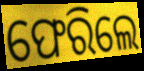
ଫେରିଲେ